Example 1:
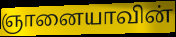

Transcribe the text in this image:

ஞானையாவின்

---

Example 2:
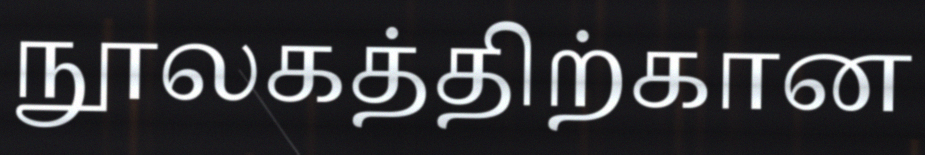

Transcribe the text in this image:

நூலகத்திற்கான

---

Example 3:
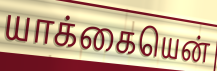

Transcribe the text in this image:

யாக்கையென்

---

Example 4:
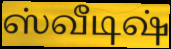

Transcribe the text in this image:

ஸ்வீடிஷ்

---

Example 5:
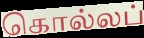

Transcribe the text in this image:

கொல்லப்